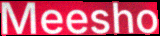
Meesho